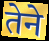
तेने